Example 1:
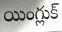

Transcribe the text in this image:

యింగ్లుక్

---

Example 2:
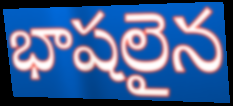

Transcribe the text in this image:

భాషలైన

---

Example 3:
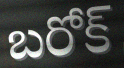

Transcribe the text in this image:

బరోక్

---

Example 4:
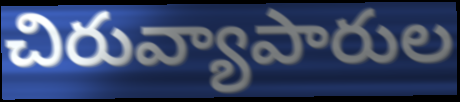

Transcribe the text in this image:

చిరువ్యాపారుల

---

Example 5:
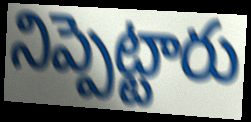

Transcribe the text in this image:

నిప్పెట్టారు